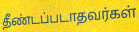
தீண்டப்படாதவர்கள்